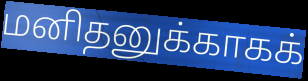
மனிதனுக்காகக்